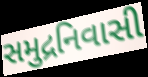
સમુદ્રનિવાસી